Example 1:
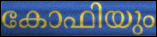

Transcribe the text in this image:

കോഫിയും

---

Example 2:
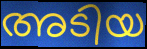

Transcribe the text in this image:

അടിയ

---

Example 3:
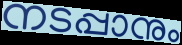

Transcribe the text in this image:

നടപ്പാനും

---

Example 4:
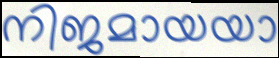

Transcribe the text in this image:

നിജമായയാ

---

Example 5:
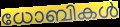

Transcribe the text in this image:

ധോബികൾ